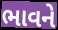
ભાવને